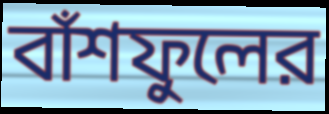
বাঁশফুলের